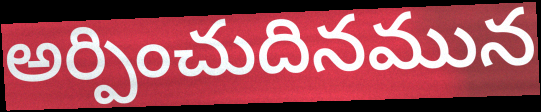
అర్పించుదినమున